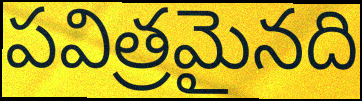
పవిత్రమైనది